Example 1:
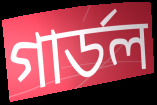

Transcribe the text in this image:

গার্ডল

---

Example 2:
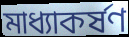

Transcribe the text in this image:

মাধ্যাকর্ষণ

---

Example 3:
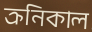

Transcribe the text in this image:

ক্রনিকাল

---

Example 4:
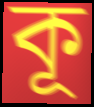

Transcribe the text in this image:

কূ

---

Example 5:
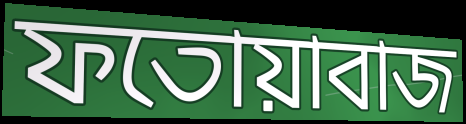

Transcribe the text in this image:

ফতোয়াবাজ